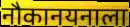
नौकानयनाला